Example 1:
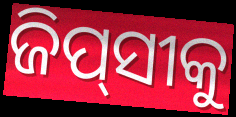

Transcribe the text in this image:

ଜିପ୍‌ସୀକୁ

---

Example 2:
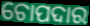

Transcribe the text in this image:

ଚୋପଦାର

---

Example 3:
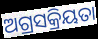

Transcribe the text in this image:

ଅଗ୍ରସକ୍ରିୟତା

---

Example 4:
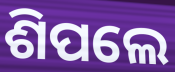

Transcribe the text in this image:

ଶିପଲେ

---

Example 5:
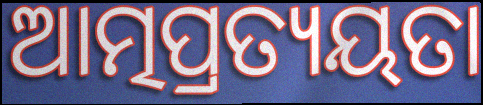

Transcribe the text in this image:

ଆତ୍ମପ୍ରତ୍ୟୟତା